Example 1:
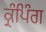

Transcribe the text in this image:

ਕ੍ਰੰਪਿੰਗ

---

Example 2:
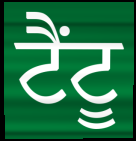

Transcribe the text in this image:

ਟੈਂਟੂ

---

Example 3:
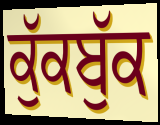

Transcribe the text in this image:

ਕੁੱਕਬੁੱਕ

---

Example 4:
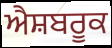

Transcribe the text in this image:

ਐਸ਼ਬਰੂਕ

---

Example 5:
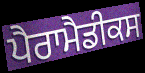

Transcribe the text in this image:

ਪੈਰਾਮੈਡੀਕਸ